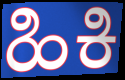
ಹಿಕಿ